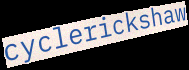
cyclerickshaw